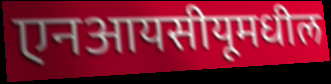
एनआयसीयूमधील